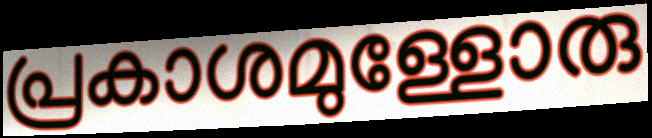
പ്രകാശമുള്ളോരു